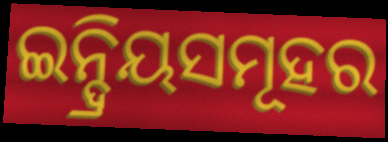
ଇନ୍ଦ୍ରିୟସମୂହର